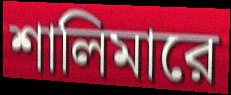
শালিমারে